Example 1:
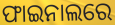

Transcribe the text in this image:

ଫାଇନାଲରେ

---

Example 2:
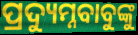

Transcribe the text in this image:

ପ୍ରଦ୍ୟୁମ୍ନବାବୁଙ୍କୁ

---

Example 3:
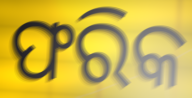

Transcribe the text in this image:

ଫରିକ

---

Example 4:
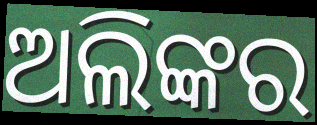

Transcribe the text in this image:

ଅଲିଙ୍କର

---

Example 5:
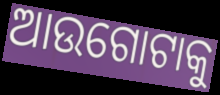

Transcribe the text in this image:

ଆଉଗୋଟାକୁ